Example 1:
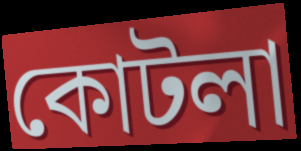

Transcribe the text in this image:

কোটলা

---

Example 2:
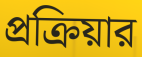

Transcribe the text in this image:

প্রক্রিয়ার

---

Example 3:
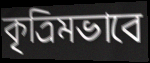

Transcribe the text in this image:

কৃত্রিমভাবে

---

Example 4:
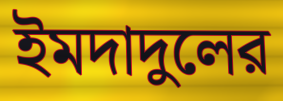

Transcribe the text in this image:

ইমদাদুলের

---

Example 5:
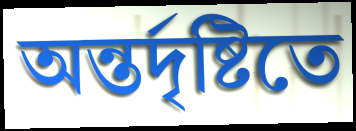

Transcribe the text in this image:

অন্তর্দৃষ্টিতে